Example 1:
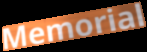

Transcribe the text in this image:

Memorial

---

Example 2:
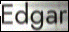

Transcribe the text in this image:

Edgar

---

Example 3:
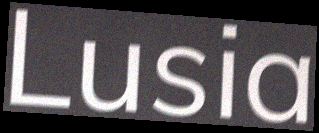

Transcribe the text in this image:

Lusia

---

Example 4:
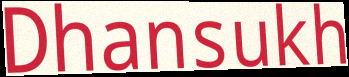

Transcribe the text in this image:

Dhansukh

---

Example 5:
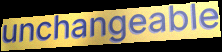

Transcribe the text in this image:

unchangeable